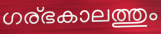
ഗര്ഭകാലത്തും